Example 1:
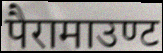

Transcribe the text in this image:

पैरामाउण्ट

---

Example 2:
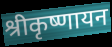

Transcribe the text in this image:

श्रीकृष्णायन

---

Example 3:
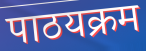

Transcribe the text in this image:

पाठयक्रम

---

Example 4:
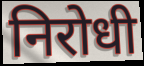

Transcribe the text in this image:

निरोधी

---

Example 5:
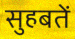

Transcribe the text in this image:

सुहबतें